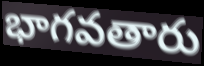
భాగవతారు